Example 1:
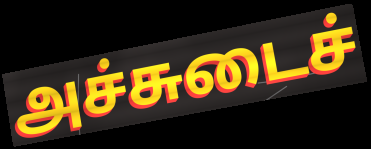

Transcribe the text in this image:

அச்சுடைச்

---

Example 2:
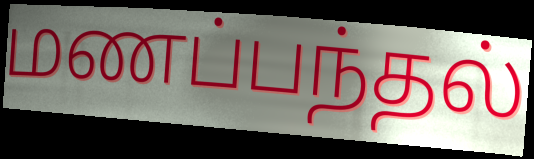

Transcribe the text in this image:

மணப்பந்தல்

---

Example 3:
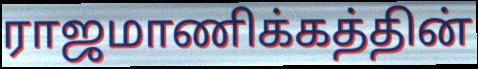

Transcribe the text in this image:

ராஜமாணிக்கத்தின்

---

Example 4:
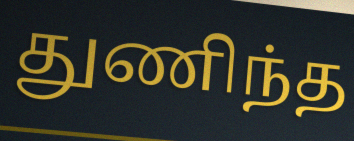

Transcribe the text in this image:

துணிந்த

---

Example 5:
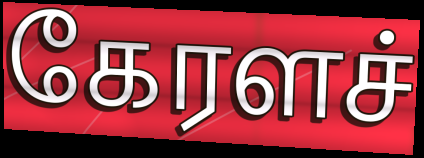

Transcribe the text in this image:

கேரளச்